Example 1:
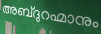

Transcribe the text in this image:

അബ്ദുറഹ്മാനും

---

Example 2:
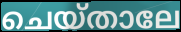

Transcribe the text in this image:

ചെയ്താലേ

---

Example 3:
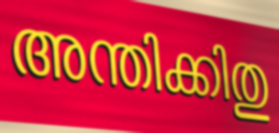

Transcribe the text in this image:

അന്തിക്കിതു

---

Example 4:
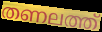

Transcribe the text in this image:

തണലത്ത്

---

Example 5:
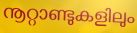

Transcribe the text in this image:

നൂറ്റാണ്ടുകളിലും